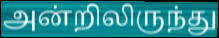
அன்றிலிருந்து